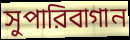
সুপারিবাগান